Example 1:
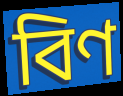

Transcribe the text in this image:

বিণ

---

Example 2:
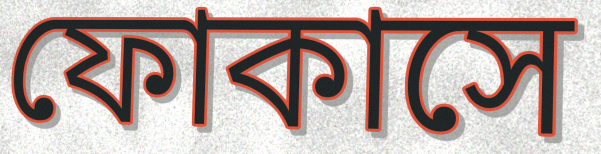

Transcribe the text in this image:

ফোকাসে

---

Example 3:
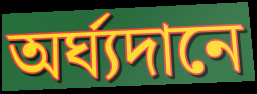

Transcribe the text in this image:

অর্ঘ্যদানে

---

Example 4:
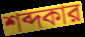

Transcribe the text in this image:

শব্দকার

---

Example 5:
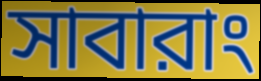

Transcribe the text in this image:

সাবারাং